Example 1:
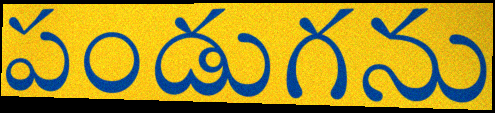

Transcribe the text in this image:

పండుగను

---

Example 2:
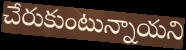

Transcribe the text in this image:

చేరుకుంటున్నాయని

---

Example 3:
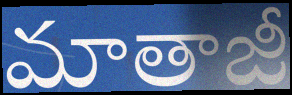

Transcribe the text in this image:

మాతాజీ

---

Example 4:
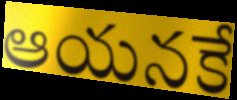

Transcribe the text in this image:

ఆయనకే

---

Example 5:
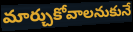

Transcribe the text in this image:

మార్చుకోవాలనుకునే